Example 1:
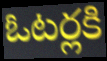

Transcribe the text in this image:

ఓటర్లకి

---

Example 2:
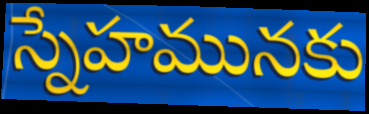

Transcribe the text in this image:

స్నేహమునకు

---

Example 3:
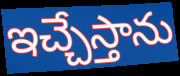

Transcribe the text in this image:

ఇచ్చేస్తాను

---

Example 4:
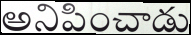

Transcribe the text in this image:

అనిపించాడు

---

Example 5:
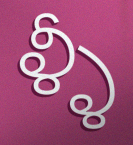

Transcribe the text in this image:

ళ్ళీ